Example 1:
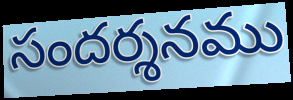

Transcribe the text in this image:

సందర్శనము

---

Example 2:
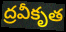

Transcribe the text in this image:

ద్రవీకృత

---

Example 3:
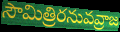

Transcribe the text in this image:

సౌమిత్రిరనువవ్రాజ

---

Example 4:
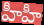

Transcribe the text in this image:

హీహీ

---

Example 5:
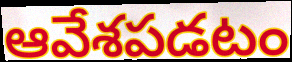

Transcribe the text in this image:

ఆవేశపడటం